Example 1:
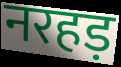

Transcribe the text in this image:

नरहड़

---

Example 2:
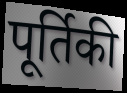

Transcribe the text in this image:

पूर्तिकी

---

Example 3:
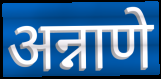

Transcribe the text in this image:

अन्नाणे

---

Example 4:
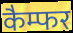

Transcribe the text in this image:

कैम्फर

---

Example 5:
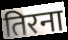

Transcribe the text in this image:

तिरना